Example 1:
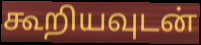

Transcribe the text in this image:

கூறியவுடன்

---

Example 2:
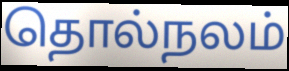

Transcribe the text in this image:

தொல்நலம்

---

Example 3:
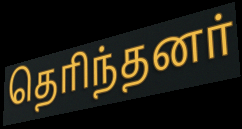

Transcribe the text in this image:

தெரிந்தனர்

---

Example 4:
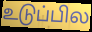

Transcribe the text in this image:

உடுப்பில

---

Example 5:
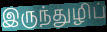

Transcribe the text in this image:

இருந்துழிப்